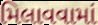
મિલાવવામાં